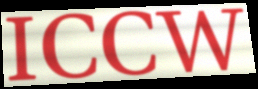
ICCW